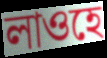
লাওহে